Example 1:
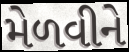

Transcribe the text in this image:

મેળવીને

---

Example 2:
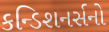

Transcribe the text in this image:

કન્ડિશનર્સનો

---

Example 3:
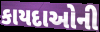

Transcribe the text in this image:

કાયદાઓની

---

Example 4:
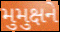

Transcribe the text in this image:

મુમુક્ષને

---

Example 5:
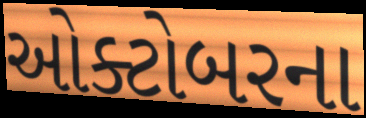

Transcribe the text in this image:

ઓક્ટોબરના